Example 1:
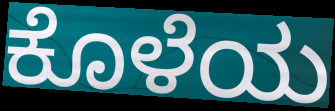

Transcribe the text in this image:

ಕೊಳೆಯ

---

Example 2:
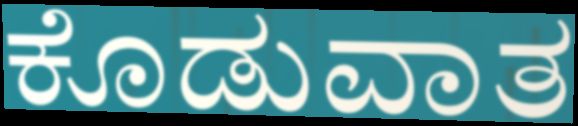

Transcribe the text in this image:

ಕೊಡುವಾತ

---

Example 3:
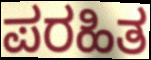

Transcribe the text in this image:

ಪರಹಿತ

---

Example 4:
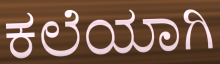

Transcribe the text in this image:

ಕಲೆಯಾಗಿ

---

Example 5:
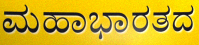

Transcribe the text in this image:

ಮಹಾಭಾರತದ